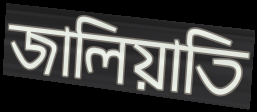
জালিয়াতি